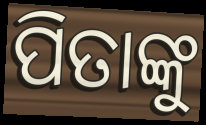
ପିତାଙ୍କୁ